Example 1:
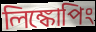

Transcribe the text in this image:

লিঙ্কোপিং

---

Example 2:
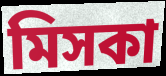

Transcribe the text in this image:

মিসকা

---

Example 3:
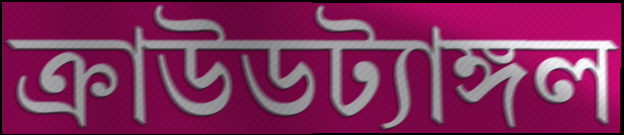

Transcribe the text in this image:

ক্রাউডট্যাঙ্গল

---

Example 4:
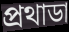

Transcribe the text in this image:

প্রথাডা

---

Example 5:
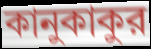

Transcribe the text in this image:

কানুকাকুর